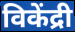
विकेंद्री